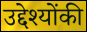
उद्देश्योंकी